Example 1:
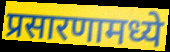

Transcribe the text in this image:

प्रसारणामध्ये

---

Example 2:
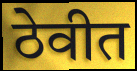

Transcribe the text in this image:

ठेवीत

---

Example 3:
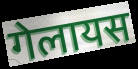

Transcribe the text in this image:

गेलायस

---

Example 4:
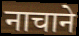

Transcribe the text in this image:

नाचाने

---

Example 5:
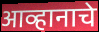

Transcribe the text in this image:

आव्हानाचे